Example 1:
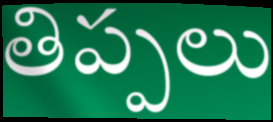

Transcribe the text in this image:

తిప్పలు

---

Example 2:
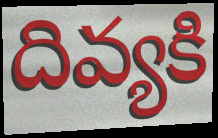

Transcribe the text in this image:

దివ్యకి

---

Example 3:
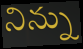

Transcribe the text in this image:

నిన్ను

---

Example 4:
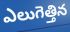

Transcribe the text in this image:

ఎలుగెత్తిన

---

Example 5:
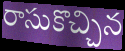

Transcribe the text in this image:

రాసుకొచ్చిన